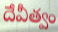
దేవీత్వం